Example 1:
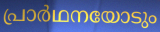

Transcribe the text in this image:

പ്രാർഥനയോടും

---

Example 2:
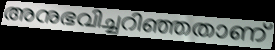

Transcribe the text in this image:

അനുഭവിച്ചറിഞ്ഞതാണ്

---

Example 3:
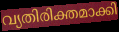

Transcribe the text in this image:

വ്യതിരിക്തമാക്കി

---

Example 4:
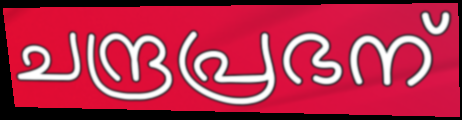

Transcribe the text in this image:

ചന്ദ്രപ്രഭന്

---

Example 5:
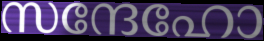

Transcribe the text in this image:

സന്ദേഹോ